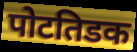
पोटतिडक